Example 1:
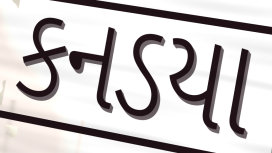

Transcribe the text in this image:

કનડયા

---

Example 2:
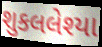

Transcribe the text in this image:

શુકલલેશ્યા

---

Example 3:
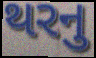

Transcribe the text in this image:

થરનુ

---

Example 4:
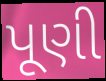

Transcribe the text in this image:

પૂણી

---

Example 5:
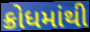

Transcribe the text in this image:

ક્રોધમાંથી